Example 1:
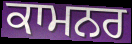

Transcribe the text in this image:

ਕਾਮਨਰ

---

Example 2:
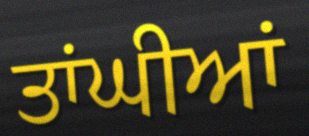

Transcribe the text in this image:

ਤਾਂਘੀਆਂ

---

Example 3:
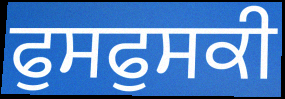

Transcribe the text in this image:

ਫੁਸਫੁਸਕੀ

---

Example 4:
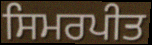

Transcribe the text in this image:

ਸਿਮਰਪੀਤ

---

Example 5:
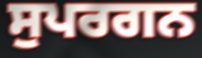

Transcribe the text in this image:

ਸੁਪਰਗਨ